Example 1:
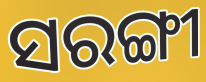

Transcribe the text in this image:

ସରଙ୍ଗୀ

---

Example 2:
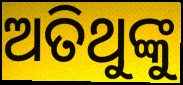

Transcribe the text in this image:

ଅତିଥୁଙ୍କୁ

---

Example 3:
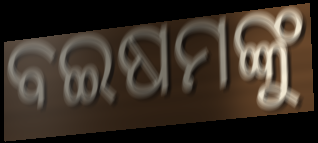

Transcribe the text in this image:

ବଇଷମଙ୍କୁ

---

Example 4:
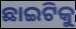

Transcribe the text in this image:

ଛାଇଟିକୁ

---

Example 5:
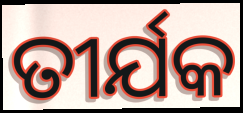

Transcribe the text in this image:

ତୀର୍ଯକ